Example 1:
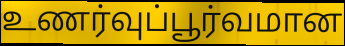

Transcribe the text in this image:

உணர்வுப்பூர்வமான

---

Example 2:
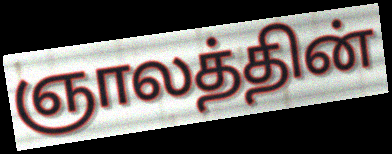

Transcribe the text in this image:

ஞாலத்தின்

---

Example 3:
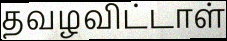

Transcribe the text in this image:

தவழவிட்டாள்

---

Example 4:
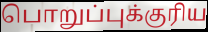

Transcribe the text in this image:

பொறுப்புக்குரிய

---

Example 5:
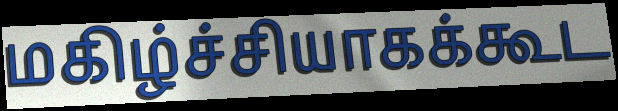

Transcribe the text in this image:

மகிழ்ச்சியாகக்கூட